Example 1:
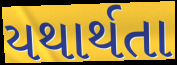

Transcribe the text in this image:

યથાર્થતા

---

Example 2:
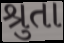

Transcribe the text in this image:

શ્રુતા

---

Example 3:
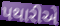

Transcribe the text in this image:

પથારીએ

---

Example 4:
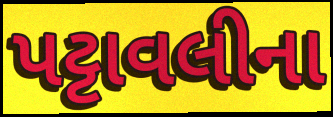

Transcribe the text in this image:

પટ્ટાવલીના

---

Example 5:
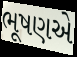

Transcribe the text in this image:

ભૂષણએ